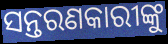
ସନ୍ତରଣକାରୀଙ୍କୁ